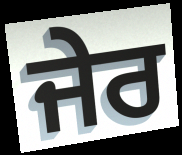
ਜੇਰ